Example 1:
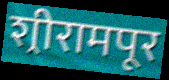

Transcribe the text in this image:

श्रीरामपूर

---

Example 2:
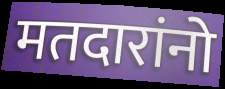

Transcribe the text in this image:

मतदारांनो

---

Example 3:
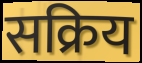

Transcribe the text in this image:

सक्रिय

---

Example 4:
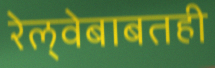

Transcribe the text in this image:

रेल्वेबाबतही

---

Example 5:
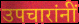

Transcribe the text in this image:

उपचारांनीं